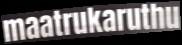
maatrukaruthu